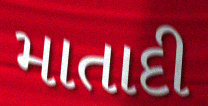
માતાદી